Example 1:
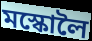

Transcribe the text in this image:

মস্কোলৈ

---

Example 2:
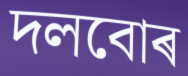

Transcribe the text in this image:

দলবোৰ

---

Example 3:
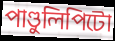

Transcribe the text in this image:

পাণ্ডুলিপিটো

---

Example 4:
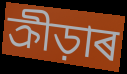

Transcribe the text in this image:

ক্ৰীড়াৰ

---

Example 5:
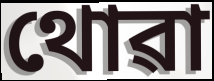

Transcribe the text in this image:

থোৱা